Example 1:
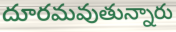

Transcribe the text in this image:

దూరమవుతున్నారు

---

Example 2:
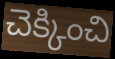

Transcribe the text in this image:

చెక్కించి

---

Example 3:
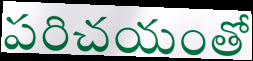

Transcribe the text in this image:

పరిచయంతో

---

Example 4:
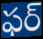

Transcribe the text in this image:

ఫర్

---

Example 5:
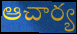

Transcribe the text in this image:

ఆచార్య